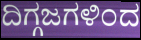
ದಿಗ್ಗಜಗಳಿಂದ